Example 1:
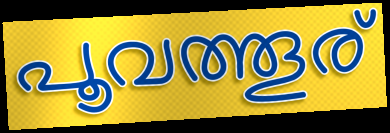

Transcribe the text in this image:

പൂവത്തൂര്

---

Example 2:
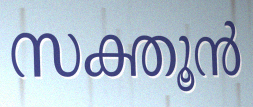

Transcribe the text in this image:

സക്തൂൻ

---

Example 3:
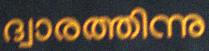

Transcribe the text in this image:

ദ്വാരത്തിന്നു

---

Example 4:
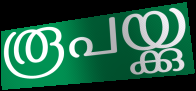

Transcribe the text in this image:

രൂപയ്ക്കു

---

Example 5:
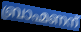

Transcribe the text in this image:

ബ്രാഹ്മണന്